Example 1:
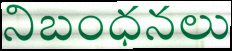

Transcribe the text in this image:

నిబంధనలు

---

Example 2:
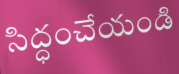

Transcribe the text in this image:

సిద్ధంచేయండి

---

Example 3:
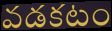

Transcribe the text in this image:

వడకటం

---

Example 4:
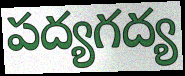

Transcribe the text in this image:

పద్యగద్య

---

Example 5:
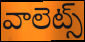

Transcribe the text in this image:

వాలెట్స్